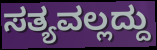
ಸತ್ಯವಲ್ಲದ್ದು